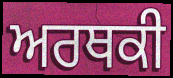
ਅਰਥਕੀ